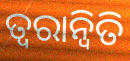
ତ୍ଵରାନ୍ଵିତି